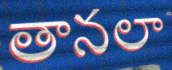
తానలా